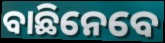
ବାଛିନେବେ